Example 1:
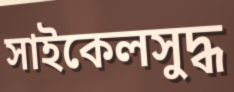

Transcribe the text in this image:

সাইকেলসুদ্ধ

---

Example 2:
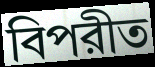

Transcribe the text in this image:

বিপরীত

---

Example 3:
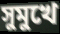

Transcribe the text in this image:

সুমুখে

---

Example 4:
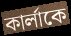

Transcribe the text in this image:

কার্লাকে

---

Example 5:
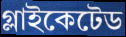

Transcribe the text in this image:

গ্লাইকেটেড